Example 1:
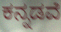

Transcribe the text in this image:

ಕನ್ನಡವೆ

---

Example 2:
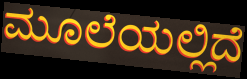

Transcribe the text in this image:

ಮೂಲೆಯಲ್ಲಿದೆ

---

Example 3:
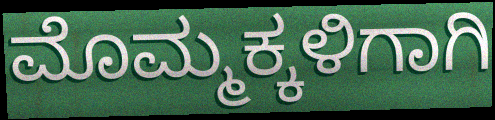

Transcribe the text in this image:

ಮೊಮ್ಮಕ್ಕಳಿಗಾಗಿ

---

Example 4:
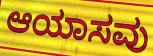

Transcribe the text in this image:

ಆಯಾಸವು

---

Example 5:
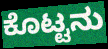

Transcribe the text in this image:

ಕೊಟ್ಟನು